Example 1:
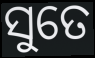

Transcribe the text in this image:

ସୁତେ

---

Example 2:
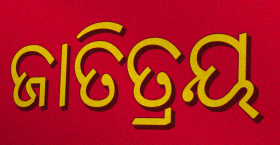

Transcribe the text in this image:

ଜାତିତ୍ରୟ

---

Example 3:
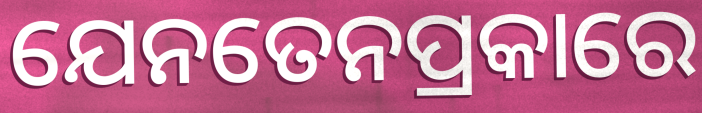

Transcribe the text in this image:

ଯେନତେନପ୍ରକାରେ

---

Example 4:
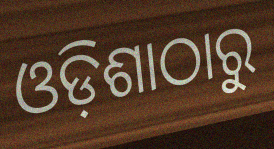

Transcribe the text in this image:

ଓଡ଼ିଶାଠାରୁ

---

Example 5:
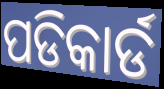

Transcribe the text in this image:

ପଡିକାର୍ଡ